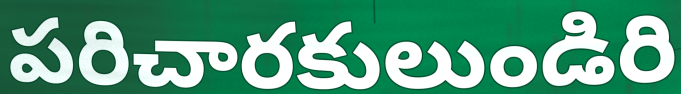
పరిచారకులుండిరి